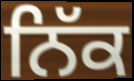
ਨਿੱਕ